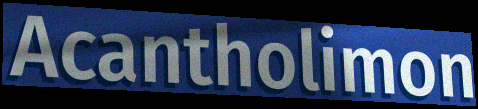
Acantholimon